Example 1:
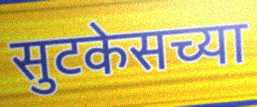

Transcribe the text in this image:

सुटकेसच्या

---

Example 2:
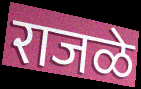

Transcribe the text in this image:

राजळे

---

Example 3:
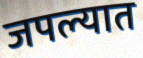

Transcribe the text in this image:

जपल्यात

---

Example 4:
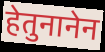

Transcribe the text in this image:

हेतुनानेन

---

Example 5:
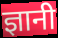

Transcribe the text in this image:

ज्ञानी